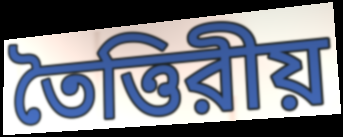
তৈত্তিরীয়